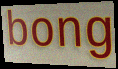
bong